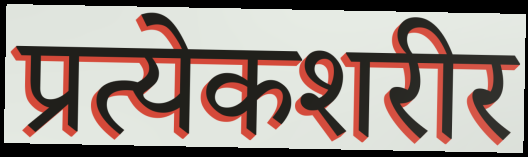
प्रत्येकशरीर